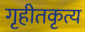
गृहीतकृत्य